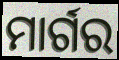
ମାର୍ଗର